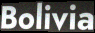
Bolivia